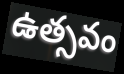
ఉత్సవం